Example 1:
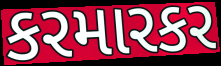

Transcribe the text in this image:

કરમારકર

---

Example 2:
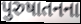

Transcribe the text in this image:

પુરુષાતનના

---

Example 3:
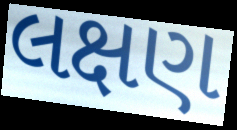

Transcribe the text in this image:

લક્ષણ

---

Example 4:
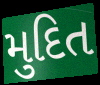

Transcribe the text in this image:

મુદિત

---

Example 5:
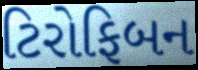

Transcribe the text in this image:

ટિરોફિબન